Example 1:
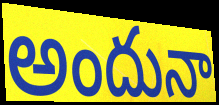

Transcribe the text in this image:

అందునా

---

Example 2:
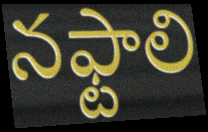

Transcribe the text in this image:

నఫ్టాలి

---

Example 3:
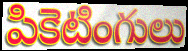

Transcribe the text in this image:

పికెటింగులు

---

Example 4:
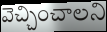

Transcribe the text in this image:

వెచ్చించాలని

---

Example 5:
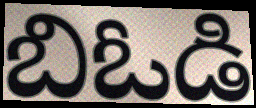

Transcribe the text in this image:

బిఓడి